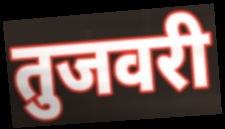
तुजवरी